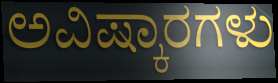
ಅವಿಷ್ಕಾರಗಳು